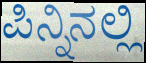
ಪಿನ್ನಿನಲ್ಲಿ